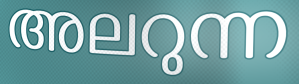
അലറുന്ന